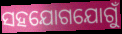
ସହଯୋଗଯୋଗୁଁ